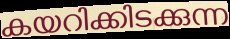
കയറിക്കിടക്കുന്ന